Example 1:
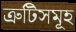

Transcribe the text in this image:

ত্ৰুটিসমূহ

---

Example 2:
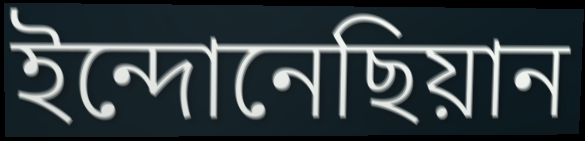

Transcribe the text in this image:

ইন্দোনেছিয়ান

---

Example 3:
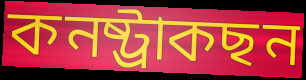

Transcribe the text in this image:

কনষ্ট্ৰাকছন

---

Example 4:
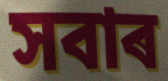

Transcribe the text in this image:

সবাৰ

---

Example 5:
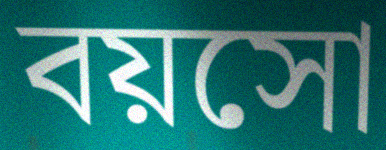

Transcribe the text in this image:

বয়সো